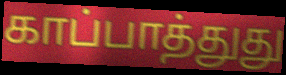
காப்பாத்துது